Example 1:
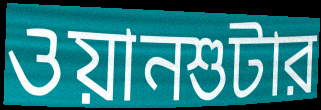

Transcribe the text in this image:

ওয়ানশুটার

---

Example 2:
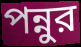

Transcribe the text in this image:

পন্নুর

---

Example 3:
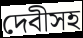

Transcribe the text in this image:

দেবীসহ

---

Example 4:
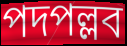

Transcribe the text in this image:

পদপল্লব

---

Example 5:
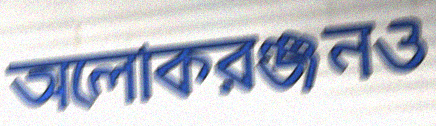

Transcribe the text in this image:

অলোকরঞ্জনও